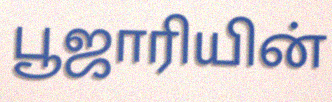
பூஜாரியின்